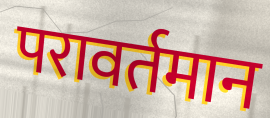
परावर्तमान